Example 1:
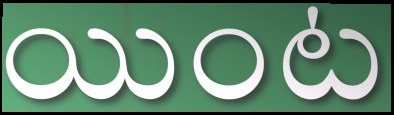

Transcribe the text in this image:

యింట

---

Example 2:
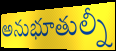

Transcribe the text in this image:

అనుభూతుల్నీ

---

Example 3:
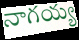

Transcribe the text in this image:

నాగయ్య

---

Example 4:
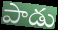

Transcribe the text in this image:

పాడు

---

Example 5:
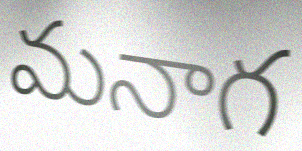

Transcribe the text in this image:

మనాగ